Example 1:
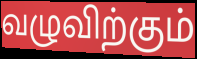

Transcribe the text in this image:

வழுவிற்கும்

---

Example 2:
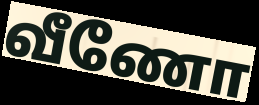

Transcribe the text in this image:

வீணோ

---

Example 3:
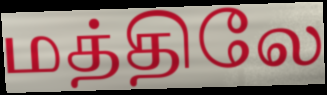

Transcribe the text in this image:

மத்திலே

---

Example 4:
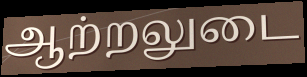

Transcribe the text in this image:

ஆற்றலுடை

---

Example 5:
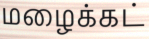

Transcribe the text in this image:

மழைக்கட்